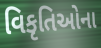
વિકૃતિઓના